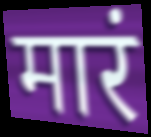
मारं